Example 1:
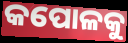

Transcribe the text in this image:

କପୋଳକୁ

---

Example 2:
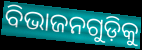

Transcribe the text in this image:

ବିଭାଜନଗୁଡ଼ିକୁ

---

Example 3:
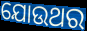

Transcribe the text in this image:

ଯୋଉଥର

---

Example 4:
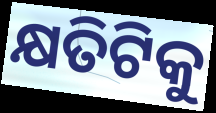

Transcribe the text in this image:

କ୍ଷତିଟିକୁ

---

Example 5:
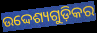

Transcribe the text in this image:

ଉଦ୍ଦେଶ୍ୟଗୁଡ଼ିକର